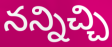
నన్నిచ్చి